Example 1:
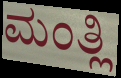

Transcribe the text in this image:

ಮಂತ್ಲಿ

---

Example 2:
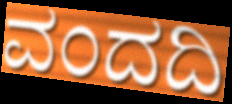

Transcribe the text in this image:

ವಂದದಿ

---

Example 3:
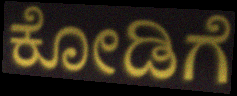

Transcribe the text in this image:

ಕೋಡಿಗೆ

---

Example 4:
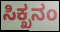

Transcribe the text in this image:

ಸಿಕ್ಖನಂ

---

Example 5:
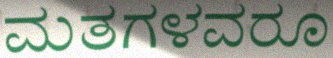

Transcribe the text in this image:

ಮತಗಳವರೂ